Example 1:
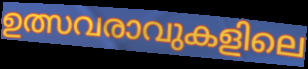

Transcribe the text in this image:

ഉത്സവരാവുകളിലെ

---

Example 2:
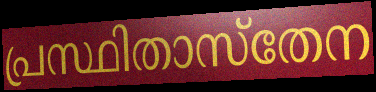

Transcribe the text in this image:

പ്രസ്ഥിതാസ്തേന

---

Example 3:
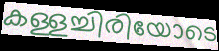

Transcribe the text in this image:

കള്ളച്ചിരിയോടെ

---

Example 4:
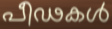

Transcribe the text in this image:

പീഢകൾ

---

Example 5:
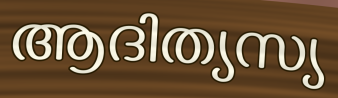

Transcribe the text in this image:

ആദിത്യസ്യ